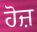
ਹੋਜ਼